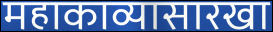
महाकाव्यासारखा